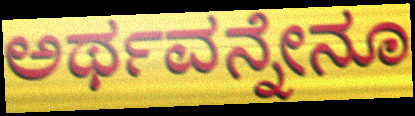
ಅರ್ಥವನ್ನೇನೂ